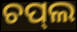
ଚପ୍‌ଲ